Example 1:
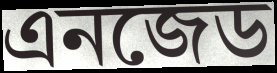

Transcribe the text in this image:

এনজেড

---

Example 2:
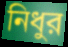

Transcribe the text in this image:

নিধুর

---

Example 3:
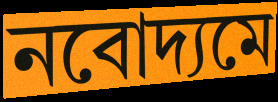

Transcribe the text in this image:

নবোদ্যমে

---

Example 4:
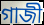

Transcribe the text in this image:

গাজী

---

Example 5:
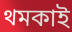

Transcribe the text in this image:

থমকাই